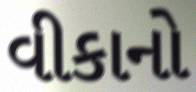
વીકાનો